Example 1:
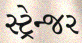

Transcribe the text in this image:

સ્ટ્રેન્જર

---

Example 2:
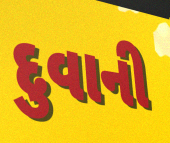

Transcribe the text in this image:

દુવાની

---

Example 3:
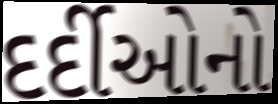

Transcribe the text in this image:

દર્દીઓનો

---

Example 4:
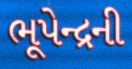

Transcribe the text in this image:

ભૂપેન્દ્રની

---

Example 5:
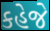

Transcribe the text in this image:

કહેજે